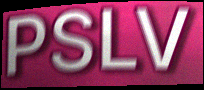
PSLV